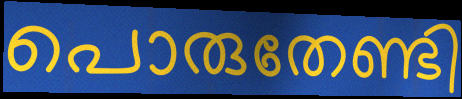
പൊരുതേണ്ടി